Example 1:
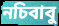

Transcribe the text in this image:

নচিবাবু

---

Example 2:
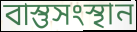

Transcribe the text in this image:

বাস্তুসংস্থান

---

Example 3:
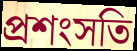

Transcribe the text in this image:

প্রশংসতি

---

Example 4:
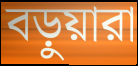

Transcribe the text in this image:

বড়ুয়ারা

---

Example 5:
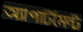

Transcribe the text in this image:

অ্যাপার্টমেন্ট